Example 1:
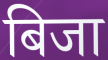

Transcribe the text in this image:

बिजा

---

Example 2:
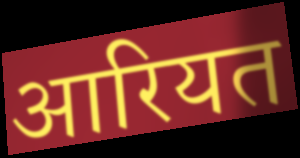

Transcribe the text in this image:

आरियत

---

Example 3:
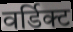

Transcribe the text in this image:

वर्डिक्ट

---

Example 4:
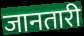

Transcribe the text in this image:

जानतारी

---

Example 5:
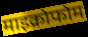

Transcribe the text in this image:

माइक्रोफोम